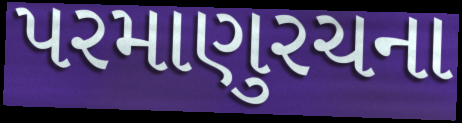
પરમાણુરચના